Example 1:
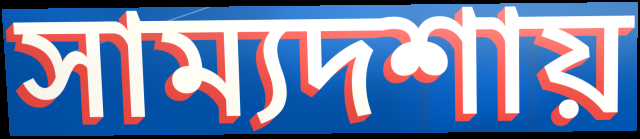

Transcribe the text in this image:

সাম্যদশায়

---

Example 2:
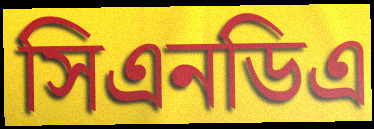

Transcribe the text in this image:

সিএনডিএ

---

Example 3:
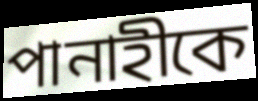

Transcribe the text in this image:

পানাহীকে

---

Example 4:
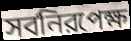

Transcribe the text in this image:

সর্বনিরপেক্ষ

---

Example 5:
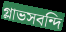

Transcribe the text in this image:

গ্লাভসবন্দি